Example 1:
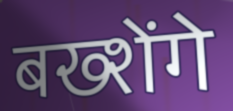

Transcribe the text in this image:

बख्शेंगे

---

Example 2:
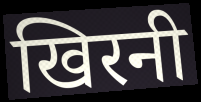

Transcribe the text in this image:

खिरनी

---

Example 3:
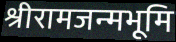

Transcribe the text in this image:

श्रीरामजन्मभूमि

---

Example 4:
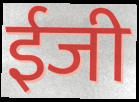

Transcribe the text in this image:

ईजी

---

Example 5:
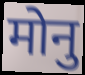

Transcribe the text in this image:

मोनु